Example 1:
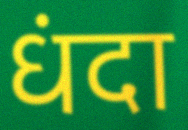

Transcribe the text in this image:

धंदा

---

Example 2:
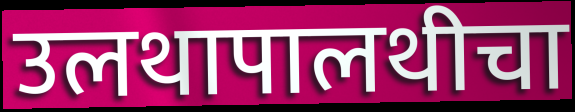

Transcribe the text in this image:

उलथापालथीचा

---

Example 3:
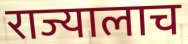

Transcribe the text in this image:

राज्यालाच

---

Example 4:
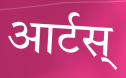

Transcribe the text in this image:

आर्टस्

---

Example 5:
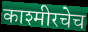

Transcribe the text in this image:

काश्मीरचेच